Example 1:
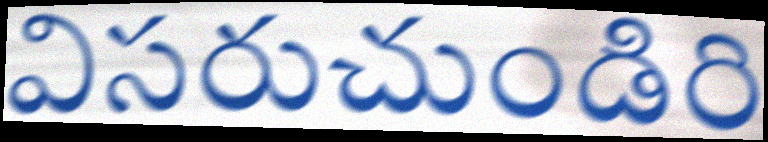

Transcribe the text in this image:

విసరుచుండిరి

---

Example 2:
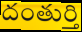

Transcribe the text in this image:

దంతుర్తి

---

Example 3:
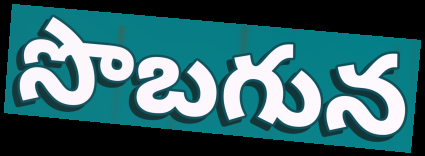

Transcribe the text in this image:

సొబగున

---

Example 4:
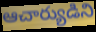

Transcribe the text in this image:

ఆచార్యుడిని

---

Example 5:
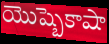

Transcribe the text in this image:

యొష్బెకాషా